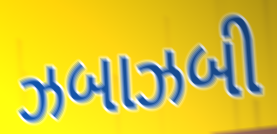
ઝબાઝબી